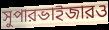
সুপারভাইজারও